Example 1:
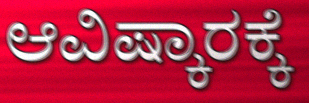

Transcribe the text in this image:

ಆವಿಷ್ಕಾರಕ್ಕೆ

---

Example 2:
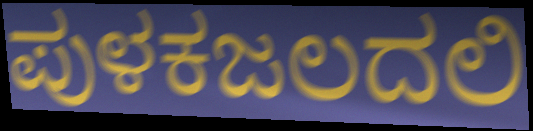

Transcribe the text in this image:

ಪುಳಕಜಲದಲಿ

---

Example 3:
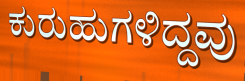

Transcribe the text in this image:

ಕುರುಹುಗಳಿದ್ದವು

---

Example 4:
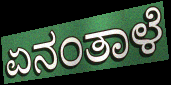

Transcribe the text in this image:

ಏನಂತಾಳೆ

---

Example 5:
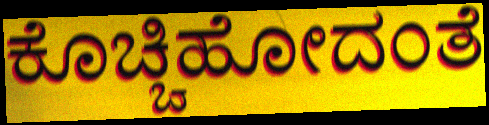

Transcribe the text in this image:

ಕೊಚ್ಚಿಹೋದಂತೆ